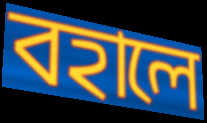
বহালে